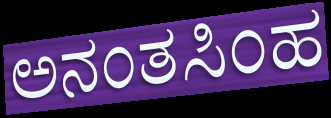
ಅನಂತಸಿಂಹ